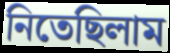
নিতেছিলাম